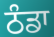
ਠੰਡਾ